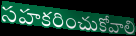
సహకరించుకోవాలి